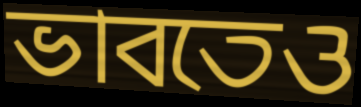
ভাবতেও